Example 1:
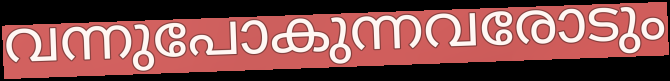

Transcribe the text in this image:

വന്നുപോകുന്നവരോടും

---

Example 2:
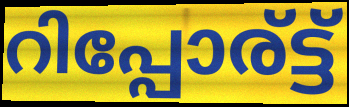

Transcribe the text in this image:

റിപ്പോര്ട്ട്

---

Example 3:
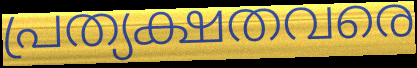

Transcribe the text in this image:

പ്രത്യക്ഷതവരെ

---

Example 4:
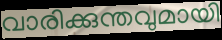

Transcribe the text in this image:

വാരിക്കുന്തവുമായി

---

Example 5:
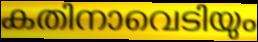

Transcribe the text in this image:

കതിനാവെടിയും